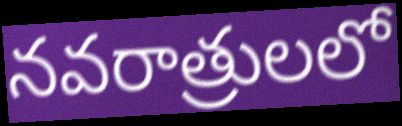
నవరాత్రులలో